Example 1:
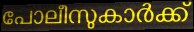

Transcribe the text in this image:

പോലീസുകാർക്ക്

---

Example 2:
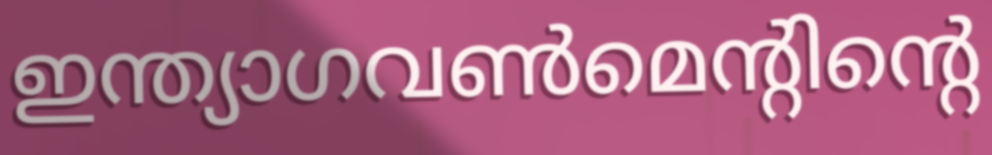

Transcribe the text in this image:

ഇന്ത്യാഗവൺമെന്റിന്റെ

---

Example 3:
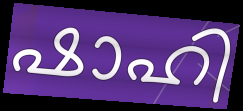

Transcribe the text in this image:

ഷാഹി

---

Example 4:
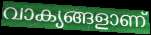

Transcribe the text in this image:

വാക്യങ്ങളാണ്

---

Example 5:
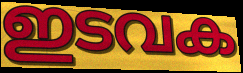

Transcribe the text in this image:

ഇടവക